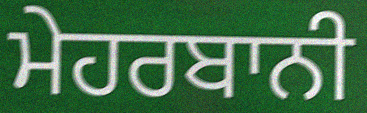
ਮੇਹਰਬਾਨੀ